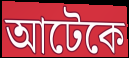
আটেকে